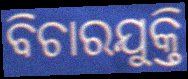
ବିଚାରଯୁକ୍ତି